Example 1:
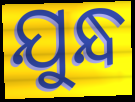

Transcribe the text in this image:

ଯୁନ୍ଧ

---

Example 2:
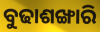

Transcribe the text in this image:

ବୁଢାଶଙ୍ଖାରି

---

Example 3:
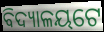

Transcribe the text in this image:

ବିଦ୍ୟାଳୟଟେ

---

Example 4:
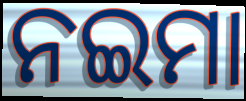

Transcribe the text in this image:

ନଇମା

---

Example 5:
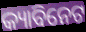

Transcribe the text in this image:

କ୍ୟାବିନେଟ